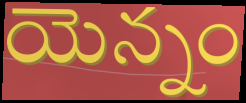
యెన్నం